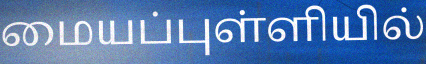
மையப்புள்ளியில்